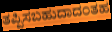
ತಪ್ಪಿಸಬಹುದಾದಂತಹ